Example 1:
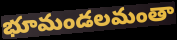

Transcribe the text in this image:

భూమండలమంతా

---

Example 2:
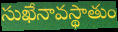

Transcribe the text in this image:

సుఖేనావస్థాతుం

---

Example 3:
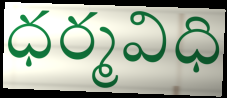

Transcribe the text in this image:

ధర్మవిధి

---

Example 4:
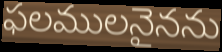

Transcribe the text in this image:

ఫలములనైనను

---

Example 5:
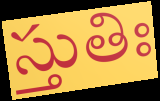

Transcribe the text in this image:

స్తుతిః